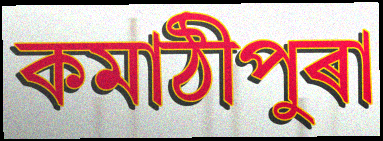
কমাঠীপুৰা